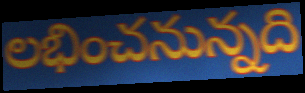
లభించనున్నది